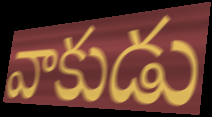
వాకుడు